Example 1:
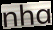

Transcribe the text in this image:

nha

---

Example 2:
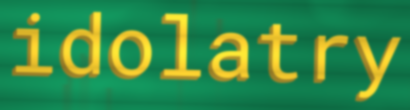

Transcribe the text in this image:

idolatry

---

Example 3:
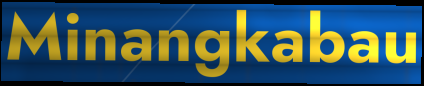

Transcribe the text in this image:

Minangkabau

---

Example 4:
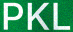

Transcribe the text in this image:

PKL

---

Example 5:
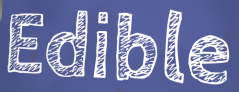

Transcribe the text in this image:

Edible